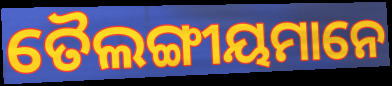
ତୈଲଙ୍ଗୀୟମାନେ